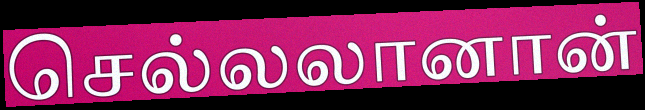
செல்லலானான்